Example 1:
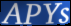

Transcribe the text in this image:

APYs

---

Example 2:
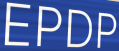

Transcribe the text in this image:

EPDP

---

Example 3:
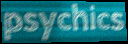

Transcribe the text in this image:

psychics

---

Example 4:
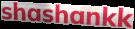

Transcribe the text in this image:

shashankk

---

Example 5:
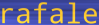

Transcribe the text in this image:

rafale